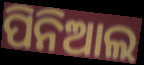
ପିନିଆଲ